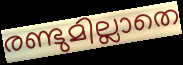
രണ്ടുമില്ലാതെ